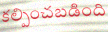
కల్పించబడింది